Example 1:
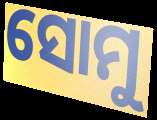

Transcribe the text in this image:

ସୋମୁ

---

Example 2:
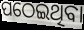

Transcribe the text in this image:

ପଠେଇଥିବା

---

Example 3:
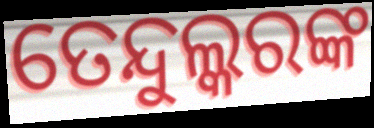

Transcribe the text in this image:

ତେନ୍ଦୁଲ୍କରଙ୍କ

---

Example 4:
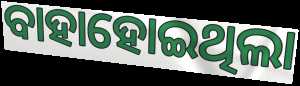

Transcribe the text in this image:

ବାହାହୋଇଥିଲା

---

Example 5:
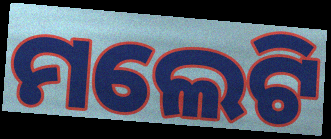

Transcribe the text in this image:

ମଲେଟି